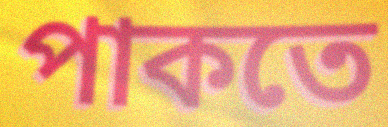
পাকতে